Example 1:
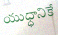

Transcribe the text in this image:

యుధ్ధానికే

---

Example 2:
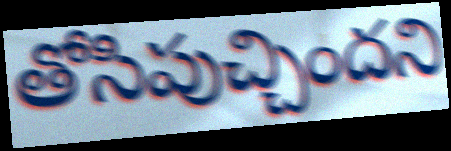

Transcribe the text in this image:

తోసిపుచ్చిందని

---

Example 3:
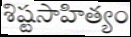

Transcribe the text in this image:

శిష్టసాహిత్యం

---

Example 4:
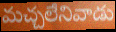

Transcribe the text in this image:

మచ్చలేనివాడు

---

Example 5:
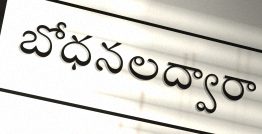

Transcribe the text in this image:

బోధనలద్వారా